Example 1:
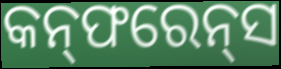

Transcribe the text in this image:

କନ୍‌ଫରେନ୍‌ସ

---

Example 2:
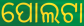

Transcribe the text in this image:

ପୋଲଟା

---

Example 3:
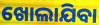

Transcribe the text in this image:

ଖୋଲାଯିବା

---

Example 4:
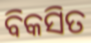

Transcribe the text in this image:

ବିକସିତ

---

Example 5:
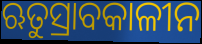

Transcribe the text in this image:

ଋତୁସ୍ରାବକାଳୀନ